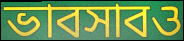
ভাবসাবও